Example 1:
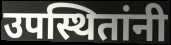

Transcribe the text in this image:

उपस्थितांनी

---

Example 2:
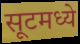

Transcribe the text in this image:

सूटमध्ये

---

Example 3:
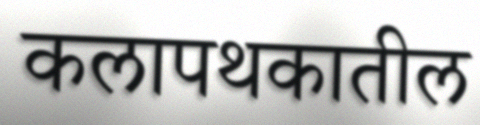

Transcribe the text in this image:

कलापथकातील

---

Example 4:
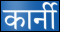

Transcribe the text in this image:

कार्नी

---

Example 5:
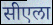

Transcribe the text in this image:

सीएला